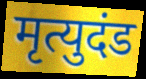
मृत्युदंड